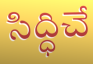
సిద్ధిచే